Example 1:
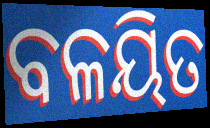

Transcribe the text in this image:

ବଳୟିତ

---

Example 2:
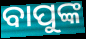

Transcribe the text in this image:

ବାପୁଙ୍କ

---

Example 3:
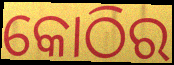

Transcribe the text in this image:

କୋଠିର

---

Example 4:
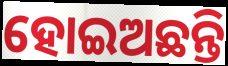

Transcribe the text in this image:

ହୋଇଅଛନ୍ତି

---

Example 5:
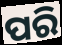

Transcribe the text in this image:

ପରି